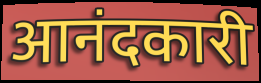
आनंदकारी